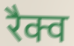
रैक्व